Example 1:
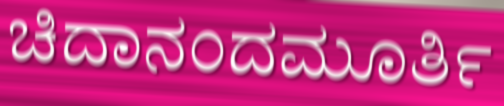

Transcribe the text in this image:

ಚಿದಾನಂದಮೂರ್ತಿ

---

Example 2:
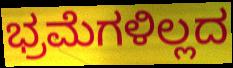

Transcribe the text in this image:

ಭ್ರಮೆಗಳಿಲ್ಲದ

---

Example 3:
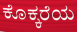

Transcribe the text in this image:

ಕೊಕ್ಕರೆಯ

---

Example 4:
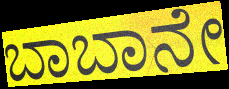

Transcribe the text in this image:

ಬಾಬಾನೇ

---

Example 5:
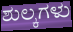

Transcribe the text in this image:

ಶುಲ್ಕಗಳು